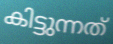
കിട്ടുന്നത്